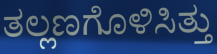
ತಲ್ಲಣಗೊಳಿಸಿತ್ತು